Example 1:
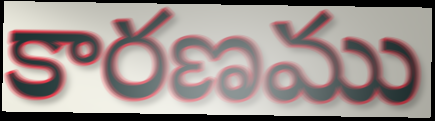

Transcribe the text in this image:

కారణము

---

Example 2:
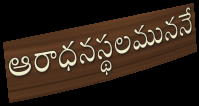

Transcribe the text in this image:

ఆరాధనస్థలముననే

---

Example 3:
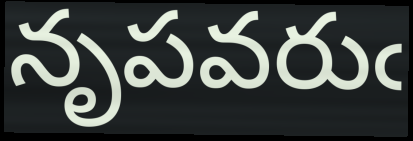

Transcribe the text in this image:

నృపవరుఁ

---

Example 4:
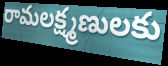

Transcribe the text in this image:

రామలక్ష్మణులకు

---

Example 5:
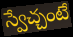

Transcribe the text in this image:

స్వేచ్చంటే